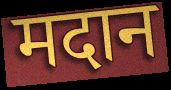
मदान